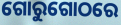
ଗୋରୁଗୋଠରେ